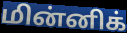
மின்னிக்